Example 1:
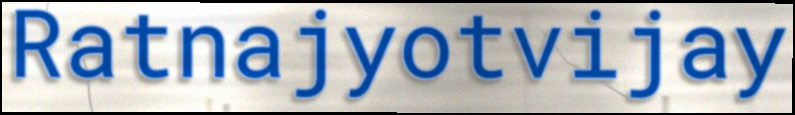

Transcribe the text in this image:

Ratnajyotvijay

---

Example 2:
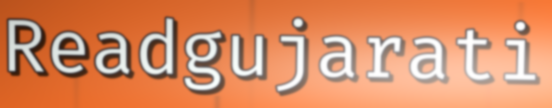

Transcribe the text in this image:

Readgujarati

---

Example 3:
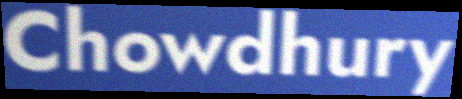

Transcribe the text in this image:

Chowdhury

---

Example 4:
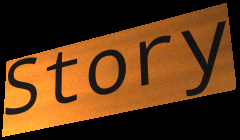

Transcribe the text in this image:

Story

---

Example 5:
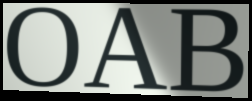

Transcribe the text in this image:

OAB